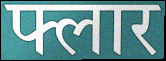
फ्लार